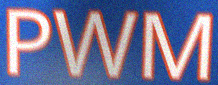
PWM